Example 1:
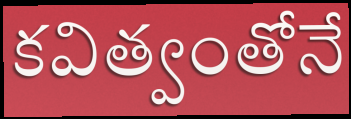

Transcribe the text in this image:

కవిత్వంతోనే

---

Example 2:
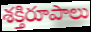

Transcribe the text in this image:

శక్తిరూపాలు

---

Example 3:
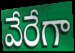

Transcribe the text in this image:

వేరేగా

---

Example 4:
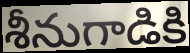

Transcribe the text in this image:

శీనుగాడికి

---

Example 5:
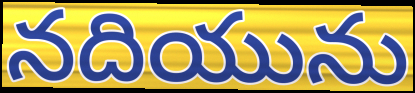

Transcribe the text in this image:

నదియును